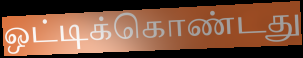
ஒட்டிக்கொண்டது